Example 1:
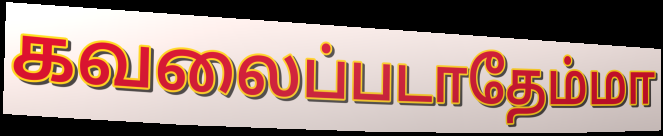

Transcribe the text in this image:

கவலைப்படாதேம்மா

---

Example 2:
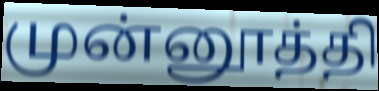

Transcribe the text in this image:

முன்னூத்தி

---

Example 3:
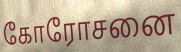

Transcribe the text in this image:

கோரோசனை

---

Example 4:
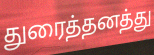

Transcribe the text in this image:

துரைத்தனத்து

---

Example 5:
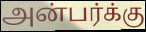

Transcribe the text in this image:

அன்பர்க்கு